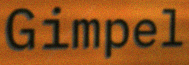
Gimpel